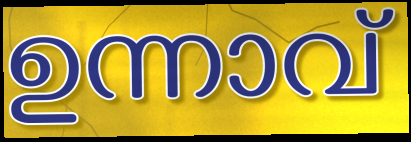
ഉന്നാവ്